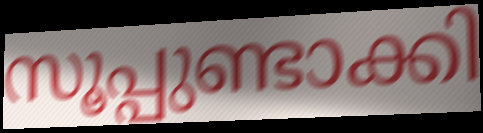
സൂപ്പുണ്ടാക്കി